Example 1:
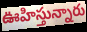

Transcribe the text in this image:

ఊహిస్తున్నారు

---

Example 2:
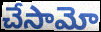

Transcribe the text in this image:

చేసామో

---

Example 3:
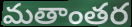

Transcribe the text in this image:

మతాంతర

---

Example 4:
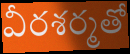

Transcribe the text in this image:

వీరశర్మతో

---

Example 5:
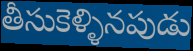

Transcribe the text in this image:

తీసుకెళ్ళినపుడు